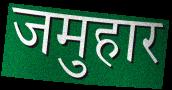
जमुहार